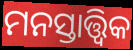
ମନସ୍ତାତ୍ତ୍ୱିକ